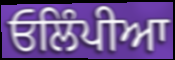
ਓਲਿੰਪੀਆ